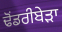
ਢੋਂਡਰੀਬੇੜਾ